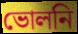
ভোলনি